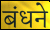
बंधने